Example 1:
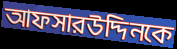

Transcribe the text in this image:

আফসারউদ্দিনকে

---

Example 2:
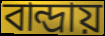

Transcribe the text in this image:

বান্দ্রায়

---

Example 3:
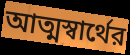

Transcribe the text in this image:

আত্মস্বার্থের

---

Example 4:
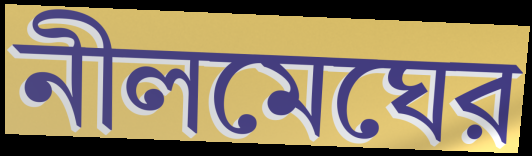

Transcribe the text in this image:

নীলমেঘের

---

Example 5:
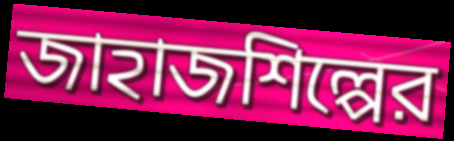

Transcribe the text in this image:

জাহাজশিল্পের